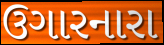
ઉગારનારા